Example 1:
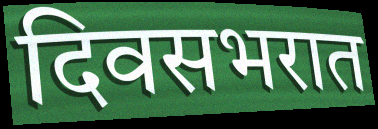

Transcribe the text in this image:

दिवसभरात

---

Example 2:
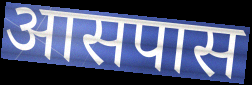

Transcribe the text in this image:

आसपास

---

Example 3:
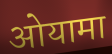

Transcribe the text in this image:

ओयामा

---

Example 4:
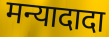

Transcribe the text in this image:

मन्यादादा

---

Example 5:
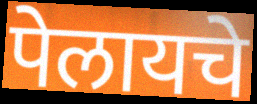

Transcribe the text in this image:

पेलायचे